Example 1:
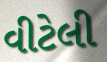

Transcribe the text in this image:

વીટેલી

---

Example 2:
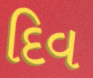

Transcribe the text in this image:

દિવ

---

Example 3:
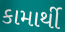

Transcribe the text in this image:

કામાર્થી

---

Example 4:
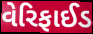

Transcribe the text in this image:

વેરિફાઈડ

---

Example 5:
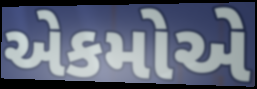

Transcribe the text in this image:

એકમોએ